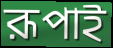
রূপাই